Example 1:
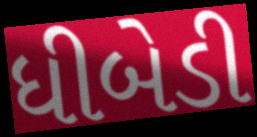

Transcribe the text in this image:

ધીબેડી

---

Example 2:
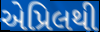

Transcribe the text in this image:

એપ્રિલથી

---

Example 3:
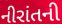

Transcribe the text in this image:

નીરાંતની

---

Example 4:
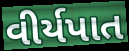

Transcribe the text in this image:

વીર્યપાત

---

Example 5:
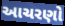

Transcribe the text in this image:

આચરણો